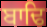
ਬਾਢਿ